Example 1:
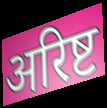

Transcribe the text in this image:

अरिष्ट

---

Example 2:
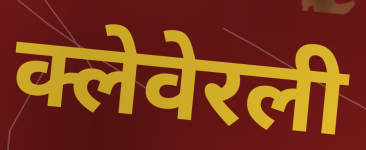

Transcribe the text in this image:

क्लेवेरली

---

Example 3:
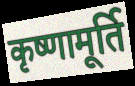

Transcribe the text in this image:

कृष्णामूर्ति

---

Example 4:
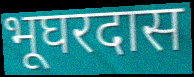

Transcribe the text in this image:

भूघरदास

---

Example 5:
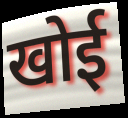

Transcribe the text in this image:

खोई